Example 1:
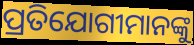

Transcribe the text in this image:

ପ୍ରତିଯୋଗୀମାନଙ୍କୁ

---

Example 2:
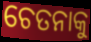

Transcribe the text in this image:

ଚେତନାକୁ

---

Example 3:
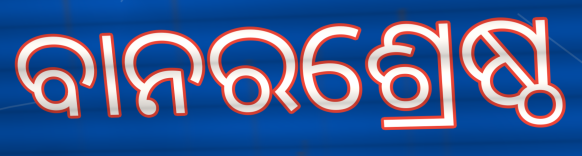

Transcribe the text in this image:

ବାନରଶ୍ରେଷ୍ଠ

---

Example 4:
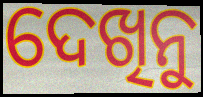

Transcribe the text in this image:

ଦେଖିନୁ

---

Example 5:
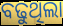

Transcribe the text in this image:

ବଢୁଥିଲା